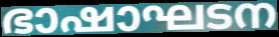
ഭാഷാഘടന